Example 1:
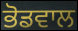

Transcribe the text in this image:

ਭੋਡਵਾਲ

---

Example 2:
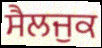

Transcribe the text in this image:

ਸੈਲਜੁਕ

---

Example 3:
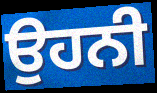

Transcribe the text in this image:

ਉਹਨੀ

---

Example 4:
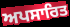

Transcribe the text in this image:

ਅਪਸਾਰਿਤ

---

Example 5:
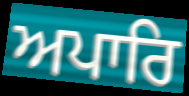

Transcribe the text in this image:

ਅਪਾਰਿ